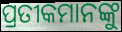
ପ୍ରତୀକମାନଙ୍କୁ